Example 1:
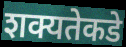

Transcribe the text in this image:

शक्यतेकडे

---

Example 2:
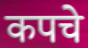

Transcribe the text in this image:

कपचे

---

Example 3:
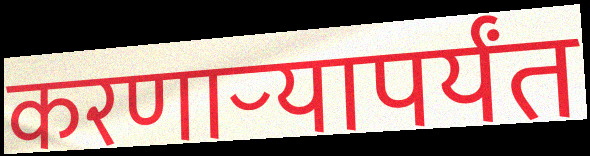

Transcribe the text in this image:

करणाऱ्यापर्यंत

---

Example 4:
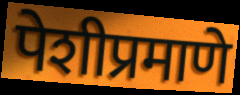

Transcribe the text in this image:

पेशीप्रमाणे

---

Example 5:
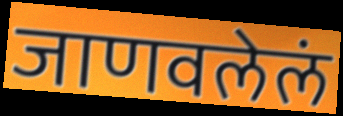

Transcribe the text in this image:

जाणवलेलं